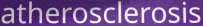
atherosclerosis